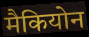
मैकियोन